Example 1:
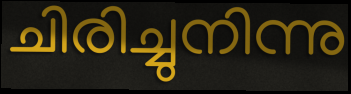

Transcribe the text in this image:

ചിരിച്ചുനിന്നു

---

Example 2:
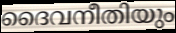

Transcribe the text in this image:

ദൈവനീതിയും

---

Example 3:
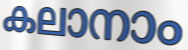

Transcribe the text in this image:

കലാനാം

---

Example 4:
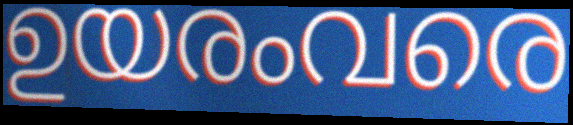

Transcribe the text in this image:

ഉയരംവരെ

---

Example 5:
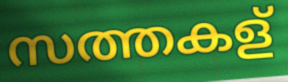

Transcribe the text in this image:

സത്തകള്